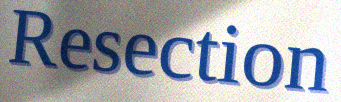
Resection